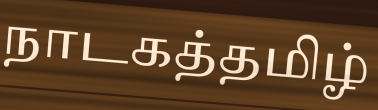
நாடகத்தமிழ்